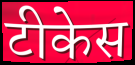
टीकेस